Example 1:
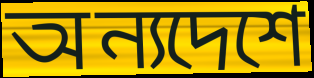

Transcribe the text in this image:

অন্যদেশে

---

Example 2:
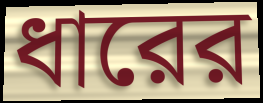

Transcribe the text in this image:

ধারের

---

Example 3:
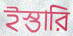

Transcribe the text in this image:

ইস্তারি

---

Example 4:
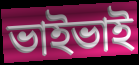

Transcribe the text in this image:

ভাইভাই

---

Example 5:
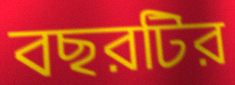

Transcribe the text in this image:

বছরটির